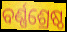
ବର୍ଣ୍ଣଶ୍ରେଷ୍ଠ